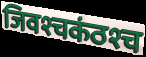
जिवश्चकंठश्च